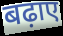
बढ़ाए